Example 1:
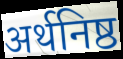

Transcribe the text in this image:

अर्थनिष्ठ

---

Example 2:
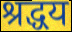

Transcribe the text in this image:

श्रद्धय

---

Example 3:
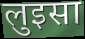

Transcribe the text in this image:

लुइसा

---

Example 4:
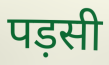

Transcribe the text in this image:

पड़सी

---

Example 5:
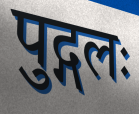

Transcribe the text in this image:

पुद्गलः